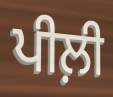
ਪੀਲ਼ੀ